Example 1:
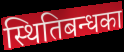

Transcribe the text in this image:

स्थितिबन्धका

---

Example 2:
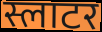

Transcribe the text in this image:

स्लाटर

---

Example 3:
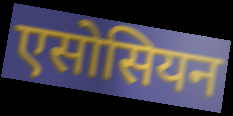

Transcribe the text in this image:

एसोसियन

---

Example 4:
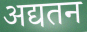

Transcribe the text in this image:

अद्यतन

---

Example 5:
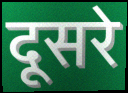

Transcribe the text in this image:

दूसरे